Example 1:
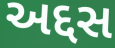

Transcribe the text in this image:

અદ્દસ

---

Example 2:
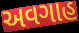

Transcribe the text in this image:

અવગાહ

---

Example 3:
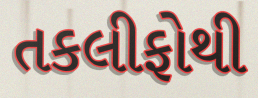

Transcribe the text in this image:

તકલીફોથી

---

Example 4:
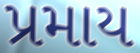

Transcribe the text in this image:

પ્રમાય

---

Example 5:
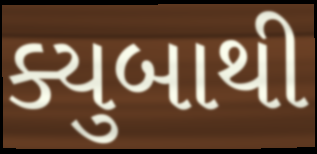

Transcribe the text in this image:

ક્યુબાથી